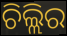
ଚିଲ୍ଲିର